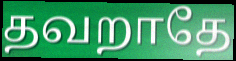
தவறாதே